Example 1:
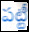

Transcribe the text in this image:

పట్టీ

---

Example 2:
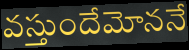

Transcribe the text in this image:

వస్తుందేమోననే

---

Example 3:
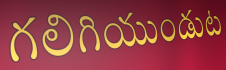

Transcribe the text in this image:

గలిగియుండుట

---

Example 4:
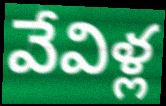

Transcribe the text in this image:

వేవిళ్ల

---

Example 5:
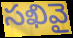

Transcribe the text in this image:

సఖివై